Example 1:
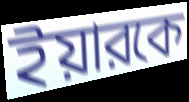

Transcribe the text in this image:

ইয়ারকে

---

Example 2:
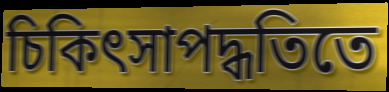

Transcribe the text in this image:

চিকিৎসাপদ্ধতিতে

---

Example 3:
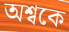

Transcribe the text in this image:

অশ্বকে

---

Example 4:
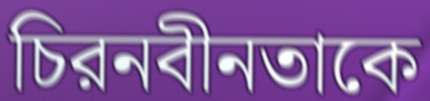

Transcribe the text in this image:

চিরনবীনতাকে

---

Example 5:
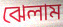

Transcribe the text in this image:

ঝেলাম